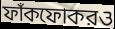
ফাঁকফোকরও